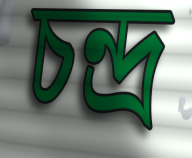
চন্দ্র